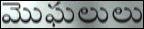
మొఘలులు